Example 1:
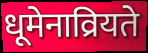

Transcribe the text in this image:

धूमेनाव्रियते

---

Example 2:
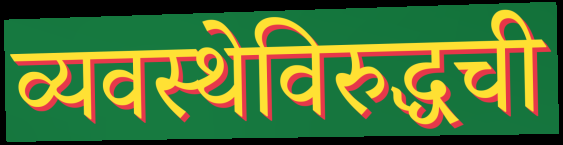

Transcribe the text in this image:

व्यवस्थेविरुद्धची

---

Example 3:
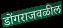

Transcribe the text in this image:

डोंगराजवळील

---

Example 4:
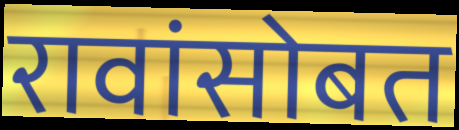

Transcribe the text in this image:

रावांसोबत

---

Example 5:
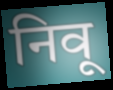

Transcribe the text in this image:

निवू